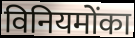
विनियमोंका